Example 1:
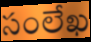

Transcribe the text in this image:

సంలేఖ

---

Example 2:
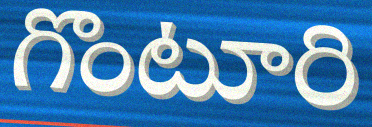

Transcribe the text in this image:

గొంటూరి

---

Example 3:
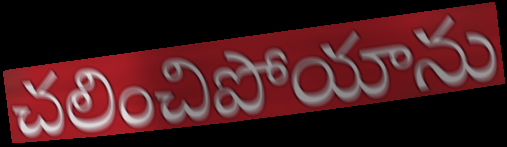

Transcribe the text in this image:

చలించిపోయాను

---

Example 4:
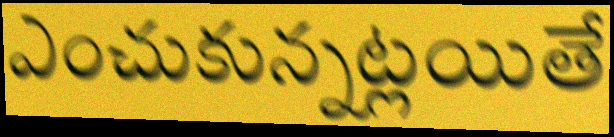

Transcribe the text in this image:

ఎంచుకున్నట్లయితే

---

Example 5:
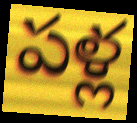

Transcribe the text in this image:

పళ్ల